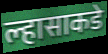
ल्हासाकडे